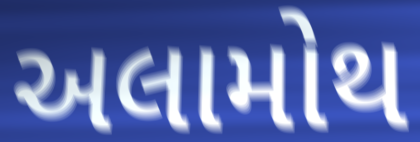
અલામોથ